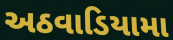
અઠવાડિયામા